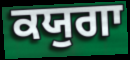
ਕਯੁਗਾ